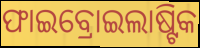
ଫାଇବ୍ରୋଇଲାଷ୍ଟିକ